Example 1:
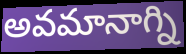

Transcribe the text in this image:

అవమానాగ్ని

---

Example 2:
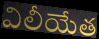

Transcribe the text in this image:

విలీయేత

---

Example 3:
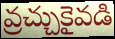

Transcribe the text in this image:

వ్రచ్చుకైవడి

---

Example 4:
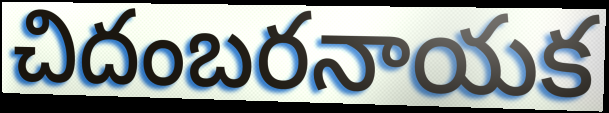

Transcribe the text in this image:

చిదంబరనాయక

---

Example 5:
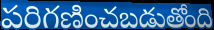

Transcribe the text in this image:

పరిగణించబడుతోంది